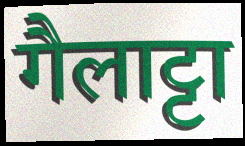
गैलाट्टा